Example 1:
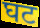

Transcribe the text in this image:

घट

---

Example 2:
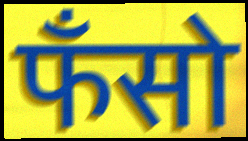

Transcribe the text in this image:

फँसो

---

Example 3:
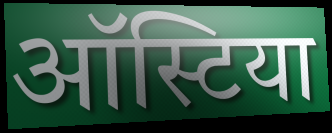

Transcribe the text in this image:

ऑस्टिया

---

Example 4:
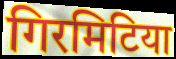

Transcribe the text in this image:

गिरमिटिया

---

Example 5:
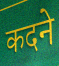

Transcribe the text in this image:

कदने